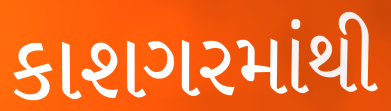
કાશગરમાંથી